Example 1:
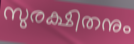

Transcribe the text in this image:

സുരക്ഷിതനും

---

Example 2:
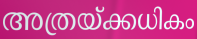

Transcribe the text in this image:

അത്രയ്ക്കധികം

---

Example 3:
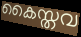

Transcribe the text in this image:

കൈസ്തവ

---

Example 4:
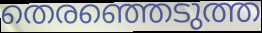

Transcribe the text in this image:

തെരഞ്ഞെടുത്ത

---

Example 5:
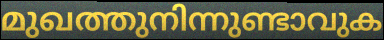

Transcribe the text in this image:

മുഖത്തുനിന്നുണ്ടാവുക